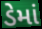
ડેમાં